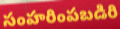
సంహరింపబడిరి